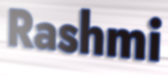
Rashmi